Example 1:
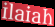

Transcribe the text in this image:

ilaiah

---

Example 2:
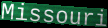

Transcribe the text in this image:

Missouri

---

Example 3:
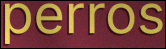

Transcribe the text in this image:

perros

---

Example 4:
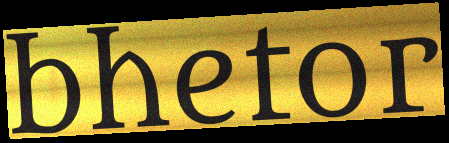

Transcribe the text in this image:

bhetor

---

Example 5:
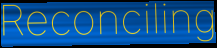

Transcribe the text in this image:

Reconciling